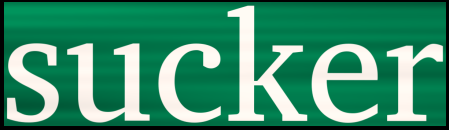
sucker